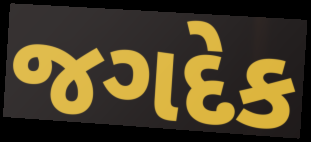
જગદેક